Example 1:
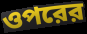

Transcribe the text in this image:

ওপরের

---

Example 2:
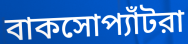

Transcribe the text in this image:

বাকসোপ্যাঁটরা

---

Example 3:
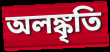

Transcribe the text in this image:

অলঙ্কৃতি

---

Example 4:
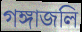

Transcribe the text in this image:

গঙ্গাজলি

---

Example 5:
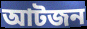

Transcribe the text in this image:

আটজন